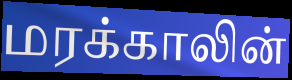
மரக்காலின்